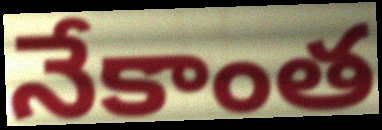
నేకాంత